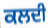
ਕਲਦੀ